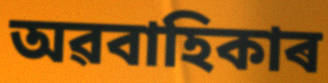
অৱবাহিকাৰ